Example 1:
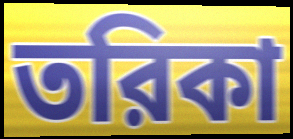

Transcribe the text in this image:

তরিকা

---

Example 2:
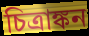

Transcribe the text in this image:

চিত্রাঙ্কন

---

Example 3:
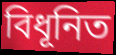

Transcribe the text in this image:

বিধূনিত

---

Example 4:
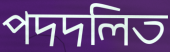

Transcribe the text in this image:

পদদলিত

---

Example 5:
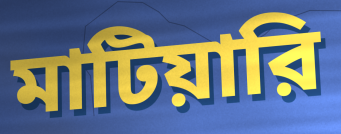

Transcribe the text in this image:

মাটিয়ারি